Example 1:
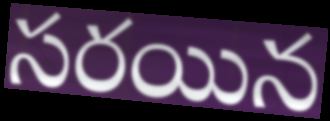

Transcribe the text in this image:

సరయిన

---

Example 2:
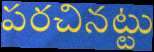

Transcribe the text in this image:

పరచినట్టు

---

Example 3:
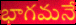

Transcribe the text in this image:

భాగమనే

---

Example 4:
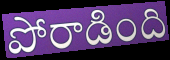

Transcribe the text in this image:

పోరాడింది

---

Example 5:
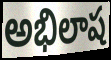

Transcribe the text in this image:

అభిలాష